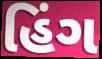
હિંગ